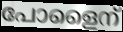
പോളൈന്